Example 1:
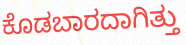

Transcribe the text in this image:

ಕೊಡಬಾರದಾಗಿತ್ತು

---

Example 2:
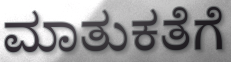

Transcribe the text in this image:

ಮಾತುಕತೆಗೆ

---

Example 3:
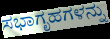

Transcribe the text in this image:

ಸಭಾಗೃಹಗಳನ್ನು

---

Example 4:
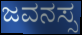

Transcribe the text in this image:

ಜವನಸ್ಸ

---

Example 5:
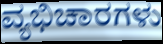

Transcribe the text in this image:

ವ್ಯಭಿಚಾರಗಳು